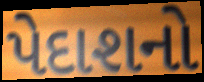
પેદાશનો